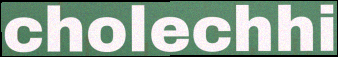
cholechhi